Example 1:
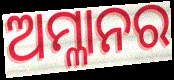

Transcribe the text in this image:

ଅମ୍ଳାନର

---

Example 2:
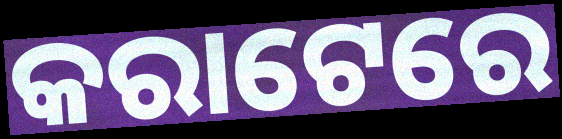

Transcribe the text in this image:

କରାଟେରେ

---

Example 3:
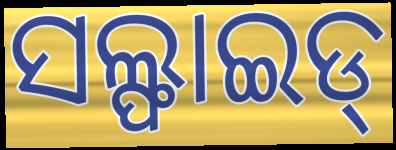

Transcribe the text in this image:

ସଲ୍ଫାଇଡ୍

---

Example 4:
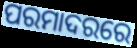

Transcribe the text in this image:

ପରମାଦରରେ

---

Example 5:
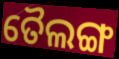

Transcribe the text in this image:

ତୈଲଙ୍ଗ